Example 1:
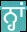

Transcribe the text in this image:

ਨ੍ਹਾਂ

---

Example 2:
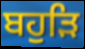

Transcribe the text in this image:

ਬਹੁੜਿ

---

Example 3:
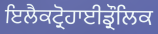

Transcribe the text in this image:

ਇਲੈਕਟ੍ਰੋਹਾਈਡ੍ਰੌਲਿਕ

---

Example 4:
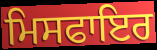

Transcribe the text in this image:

ਮਿਸਫਾਇਰ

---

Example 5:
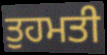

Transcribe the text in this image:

ਤੁਹਮਤੀ